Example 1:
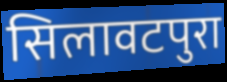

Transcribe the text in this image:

सिलावटपुरा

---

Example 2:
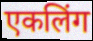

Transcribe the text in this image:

एकलिंग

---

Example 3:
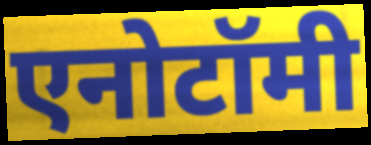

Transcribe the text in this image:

एनोटॉमी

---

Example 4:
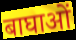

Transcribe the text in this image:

बाघाओं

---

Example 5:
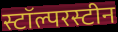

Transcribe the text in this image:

स्टॉल्परस्टीन